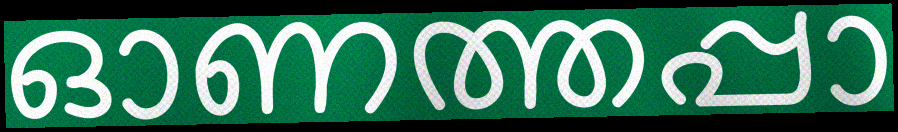
ഓണത്തപ്പാ